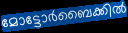
മോട്ടോർബൈക്കിൽ